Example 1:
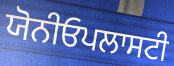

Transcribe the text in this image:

ਯੋਨੀਓਪਲਾਸਟੀ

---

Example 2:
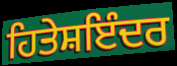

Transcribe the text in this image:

ਹਿਤੇਸ਼ਇੰਦਰ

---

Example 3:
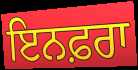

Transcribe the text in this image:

ਇਨਫ਼ਰਾ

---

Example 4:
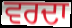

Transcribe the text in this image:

ਵਰਦਾ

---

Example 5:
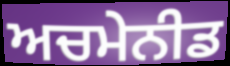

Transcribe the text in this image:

ਅਚਮੇਨੀਡ